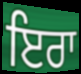
ਇਰਾ